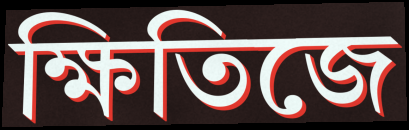
ক্ষিতিজে